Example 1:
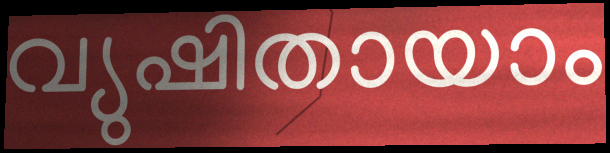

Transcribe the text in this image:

വ്യുഷിതായാം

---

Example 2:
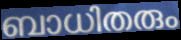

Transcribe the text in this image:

ബാധിതരും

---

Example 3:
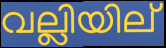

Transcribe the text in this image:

വല്ലിയില്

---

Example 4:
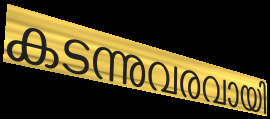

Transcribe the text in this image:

കടന്നുവരവായി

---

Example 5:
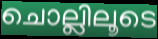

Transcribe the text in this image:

ചൊല്ലിലൂടെ